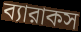
ব্যারাকস